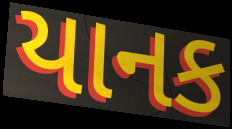
યાનક